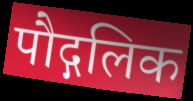
पौद्गलिक